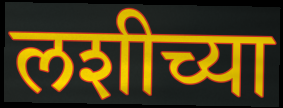
लशीच्या